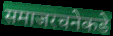
समाजरचनेकडे